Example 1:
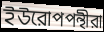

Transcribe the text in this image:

ইউরোপপন্থীরা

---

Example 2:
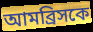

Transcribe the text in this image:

আমব্রিসকে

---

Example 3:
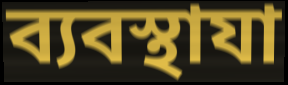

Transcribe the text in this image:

ব্যবস্থাযা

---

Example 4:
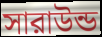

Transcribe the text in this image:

সারাউন্ড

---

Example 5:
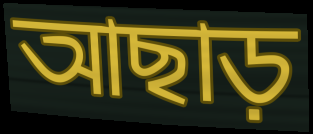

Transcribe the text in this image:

আছাড়